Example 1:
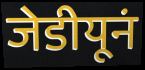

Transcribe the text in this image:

जेडीयूनं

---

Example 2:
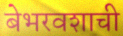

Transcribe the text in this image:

बेभरवशाची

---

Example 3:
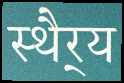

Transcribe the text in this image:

स्थैर्य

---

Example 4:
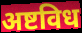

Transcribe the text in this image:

अष्टविध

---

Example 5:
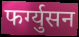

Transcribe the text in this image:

फर्ग्युसन